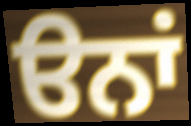
ੳਨਾਂ